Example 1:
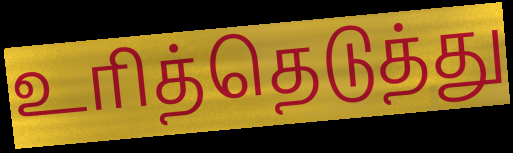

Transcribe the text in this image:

உரித்தெடுத்து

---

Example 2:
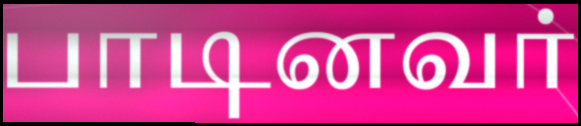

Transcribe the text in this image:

பாடினவர்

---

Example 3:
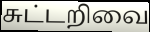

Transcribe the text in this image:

சுட்டறிவை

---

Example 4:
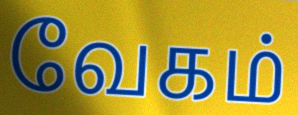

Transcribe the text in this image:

வேகம்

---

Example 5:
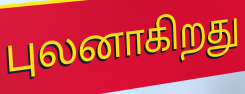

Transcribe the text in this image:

புலனாகிறது